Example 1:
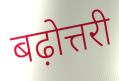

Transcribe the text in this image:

बढ़ोत्तरी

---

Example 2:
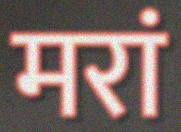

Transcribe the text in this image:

मरां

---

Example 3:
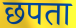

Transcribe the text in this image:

छपता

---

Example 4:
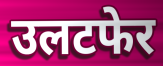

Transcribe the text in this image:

उलटफेर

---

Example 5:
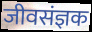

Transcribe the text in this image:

जीवसंज्ञक